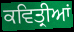
ਕਵਿਤ੍ਰੀਆਂ